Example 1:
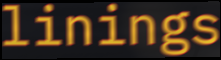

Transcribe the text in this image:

linings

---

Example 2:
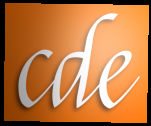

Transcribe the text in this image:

cde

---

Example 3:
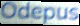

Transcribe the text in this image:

Odepus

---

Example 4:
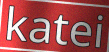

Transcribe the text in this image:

katei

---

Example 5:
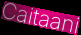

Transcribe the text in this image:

Caitaani